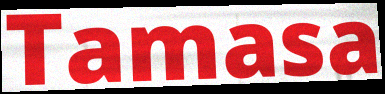
Tamasa